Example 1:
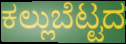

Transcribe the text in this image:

ಕಲ್ಲುಬೆಟ್ಟದ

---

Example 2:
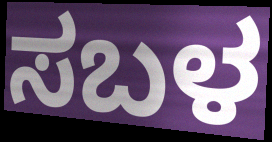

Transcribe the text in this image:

ಸಬಳ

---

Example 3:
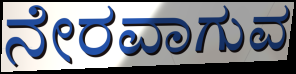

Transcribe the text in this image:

ನೇರವಾಗುವ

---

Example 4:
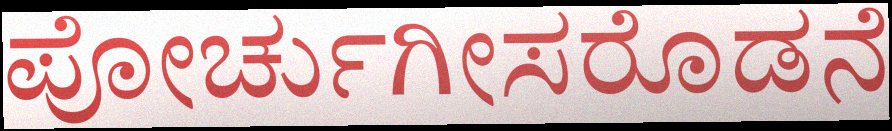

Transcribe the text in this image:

ಪೋರ್ಚುಗೀಸರೊಡನೆ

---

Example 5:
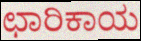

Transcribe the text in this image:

ಛಾರಿಕಾಯ